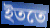
ইততে